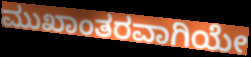
ಮುಖಾಂತರವಾಗಿಯೇ